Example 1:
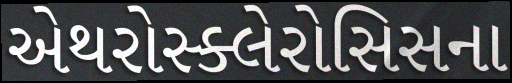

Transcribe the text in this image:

એથરોસ્ક્લેરોસિસના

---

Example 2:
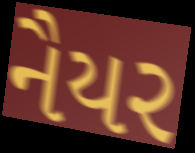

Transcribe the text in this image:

નૈયર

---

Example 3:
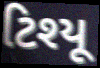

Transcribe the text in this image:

ટિશ્યૂ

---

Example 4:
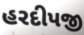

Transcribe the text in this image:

હરદીપજી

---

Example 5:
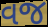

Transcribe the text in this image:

વજ